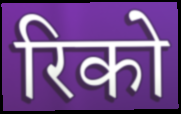
रिको